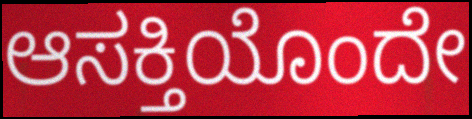
ಆಸಕ್ತಿಯೊಂದೇ